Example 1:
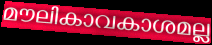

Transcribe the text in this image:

മൗലികാവകാശമല്ല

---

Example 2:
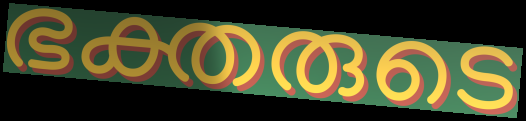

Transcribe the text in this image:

ഭക്തരുടെ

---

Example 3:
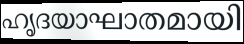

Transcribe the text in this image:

ഹൃദയാഘാതമായി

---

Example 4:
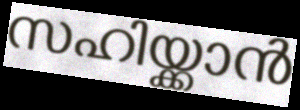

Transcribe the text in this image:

സഹിയ്ക്കാൻ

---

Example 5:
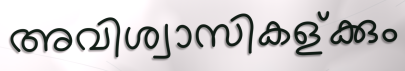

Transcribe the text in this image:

അവിശ്വാസികള്ക്കും